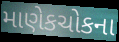
માણેકચોકના